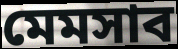
মেমসাব